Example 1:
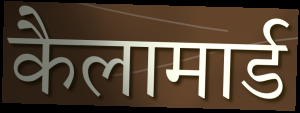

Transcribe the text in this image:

कैलामार्ड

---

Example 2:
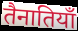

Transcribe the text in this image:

तैनातियाँ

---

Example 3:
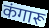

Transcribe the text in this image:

कंगारू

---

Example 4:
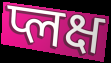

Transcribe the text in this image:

प्लक्ष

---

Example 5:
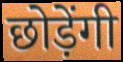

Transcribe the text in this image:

छोड़ेंगी